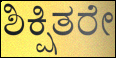
ಶಿಕ್ಷಿತರೇ